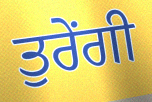
ਤੁਰੇਂਗੀ